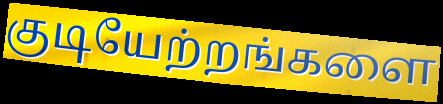
குடியேற்றங்களை